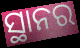
ସ୍ଥାନର